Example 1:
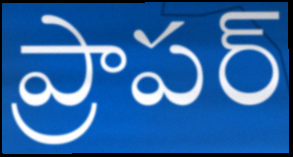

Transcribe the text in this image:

ప్రాపర్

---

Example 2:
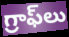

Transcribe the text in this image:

గ్రాఫ్‌లు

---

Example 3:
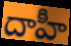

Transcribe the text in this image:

దాహీ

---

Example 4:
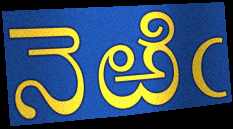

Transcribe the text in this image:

నెఱిఁ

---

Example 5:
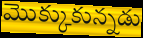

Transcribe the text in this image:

మొక్కుకున్నడు